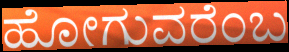
ಹೋಗುವರೆಂಬ